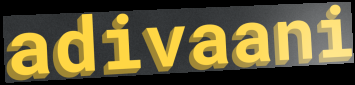
adivaani